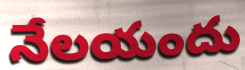
నేలయందు